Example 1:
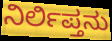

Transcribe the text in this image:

ನಿರ್ಲಿಪ್ತನು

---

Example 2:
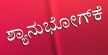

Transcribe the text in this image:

ಶ್ಯಾನುಭೋಗ್‌ಕೆ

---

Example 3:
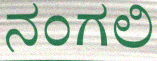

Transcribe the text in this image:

ನಂಗಲಿ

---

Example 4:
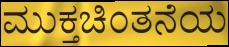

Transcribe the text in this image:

ಮುಕ್ತಚಿಂತನೆಯ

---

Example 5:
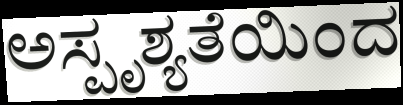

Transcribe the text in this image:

ಅಸ್ಪೃಶ್ಯತೆಯಿಂದ